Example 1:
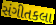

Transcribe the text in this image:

સંગીતકલા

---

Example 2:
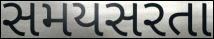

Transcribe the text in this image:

સમયસરતા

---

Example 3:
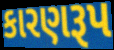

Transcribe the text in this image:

કારણરૂપ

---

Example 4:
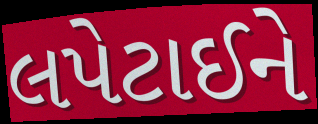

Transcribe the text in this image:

લપેટાઈને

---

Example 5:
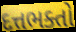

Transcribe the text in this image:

દત્તભક્તો